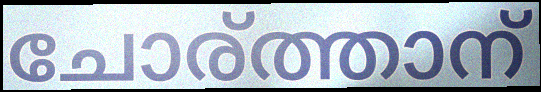
ചോര്ത്താന്